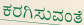
ಕರಗಿಸುವಂತೆ